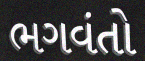
ભગવંતો